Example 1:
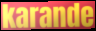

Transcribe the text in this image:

karande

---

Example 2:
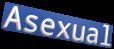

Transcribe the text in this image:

Asexual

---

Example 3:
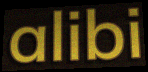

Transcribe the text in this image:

alibi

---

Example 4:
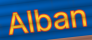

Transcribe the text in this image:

Alban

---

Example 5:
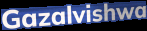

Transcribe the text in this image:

Gazalvishwa